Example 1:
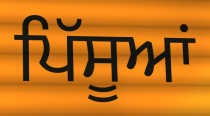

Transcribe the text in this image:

ਪਿੱਸੂਆਂ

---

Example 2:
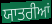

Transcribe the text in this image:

ਯਾਤਰੀਆਂ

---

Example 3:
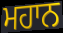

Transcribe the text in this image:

ਮਹਾਨ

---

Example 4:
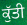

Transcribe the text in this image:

ਕੁੱਤੀ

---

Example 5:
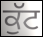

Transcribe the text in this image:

ਕੁੱਟ